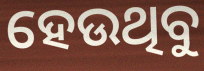
ହେଉଥିବୁ